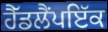
ਹੈੱਡਲੈਂਪਇੱਕ